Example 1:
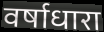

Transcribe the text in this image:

वर्षाधारा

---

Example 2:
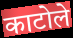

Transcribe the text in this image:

काटोले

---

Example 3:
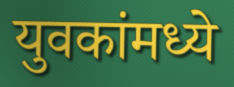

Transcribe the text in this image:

युवकांमध्ये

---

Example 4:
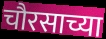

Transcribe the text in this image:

चौरसाच्या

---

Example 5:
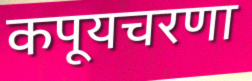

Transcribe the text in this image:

कपूयचरणा